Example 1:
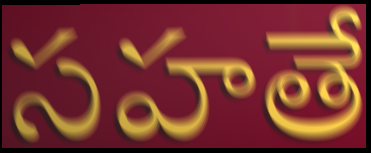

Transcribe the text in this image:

సహతే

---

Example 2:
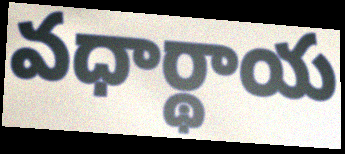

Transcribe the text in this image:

వధార్థాయ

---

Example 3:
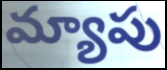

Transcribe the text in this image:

మ్యాపు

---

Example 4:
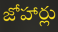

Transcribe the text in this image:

జోహార్లు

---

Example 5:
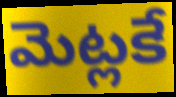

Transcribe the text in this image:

మెట్లకే